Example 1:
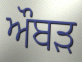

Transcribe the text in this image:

ਔਬੜ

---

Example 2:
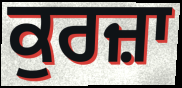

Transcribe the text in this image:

ਕੁਰਜ਼ਾ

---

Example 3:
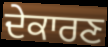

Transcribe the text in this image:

ਦੇਕਾਰਣ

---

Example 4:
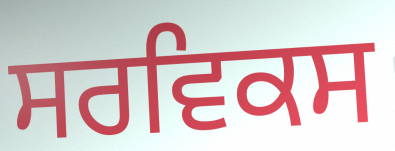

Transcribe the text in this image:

ਸਰਵਿਕਸ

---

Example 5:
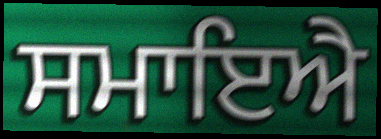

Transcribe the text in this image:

ਸਮਾਇਐ